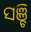
ସଞ୍ଚି